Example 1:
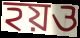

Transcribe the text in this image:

হয়ও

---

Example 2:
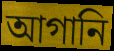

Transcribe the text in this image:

আগানি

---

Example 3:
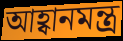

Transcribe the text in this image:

আহ্বানমন্ত্র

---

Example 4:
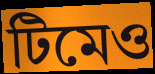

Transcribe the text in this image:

টিমেও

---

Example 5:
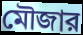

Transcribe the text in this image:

মৌজার